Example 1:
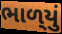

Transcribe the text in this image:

ભાળ્‌યું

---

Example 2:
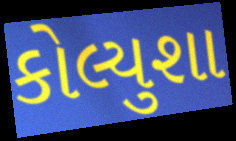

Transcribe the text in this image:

કોલ્યુશા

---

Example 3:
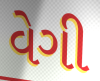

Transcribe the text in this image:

વેગી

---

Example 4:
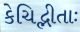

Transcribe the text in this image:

કેચિદ્ભીતાઃ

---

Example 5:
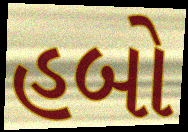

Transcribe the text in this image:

હબો